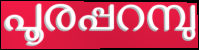
പൂരപ്പറമ്പു